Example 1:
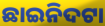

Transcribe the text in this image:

ଛାଇନିଦଟା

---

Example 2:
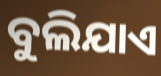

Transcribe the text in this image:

ବୁଲିଯାଏ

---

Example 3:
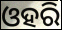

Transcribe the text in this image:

ଓହରି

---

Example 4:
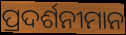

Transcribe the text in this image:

ପ୍ରଦର୍ଶନୀମାନ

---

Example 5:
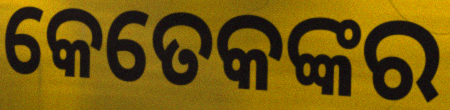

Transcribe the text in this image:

କେତେକଙ୍କର